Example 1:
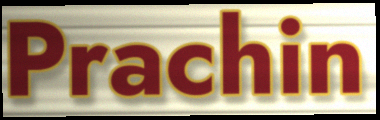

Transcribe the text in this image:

Prachin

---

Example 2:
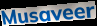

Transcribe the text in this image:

Musaveer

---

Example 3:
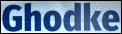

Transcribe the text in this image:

Ghodke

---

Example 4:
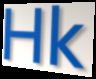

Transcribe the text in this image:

Hk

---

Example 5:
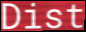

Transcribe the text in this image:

Dist